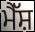
ਮੈੱਸ਼